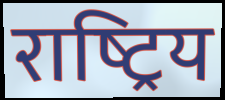
राष्ट्रिय